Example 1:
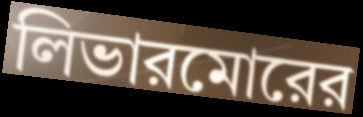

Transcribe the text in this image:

লিভারমোরের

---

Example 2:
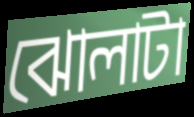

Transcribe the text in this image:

ঝোলাটা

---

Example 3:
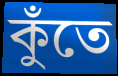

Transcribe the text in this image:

কুঁতে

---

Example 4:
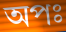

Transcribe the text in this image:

অপঃ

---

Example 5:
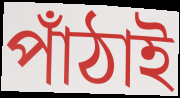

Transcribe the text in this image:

পাঁঠাই